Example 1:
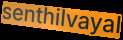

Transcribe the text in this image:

senthilvayal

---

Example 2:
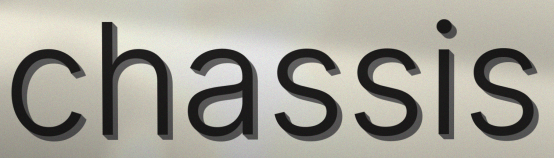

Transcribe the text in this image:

chassis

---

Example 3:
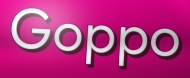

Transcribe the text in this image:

Goppo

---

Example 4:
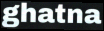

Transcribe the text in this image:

ghatna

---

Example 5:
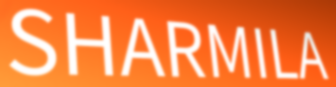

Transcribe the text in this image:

SHARMILA